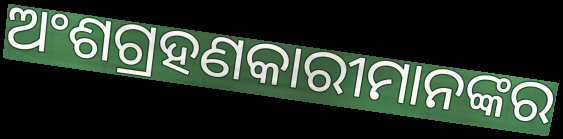
ଅଂଶଗ୍ରହଣକାରୀମାନଙ୍କର